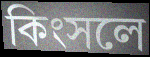
কিংসলে